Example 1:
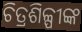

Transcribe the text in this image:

ଚିତ୍ରଶିଳ୍ପୀଙ୍କ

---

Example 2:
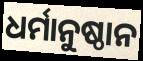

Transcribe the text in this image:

ଧର୍ମାନୁଷ୍ଠାନ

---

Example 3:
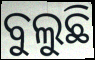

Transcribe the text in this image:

ବୁଲୁଛି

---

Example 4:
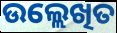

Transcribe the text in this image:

ଉଲ୍ଲେଖିତ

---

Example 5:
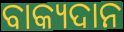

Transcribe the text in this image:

ବାକ୍ୟଦାନ